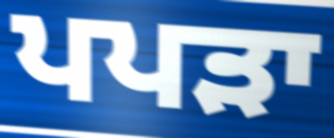
ਪਪੜਾ